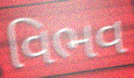
વિભવ